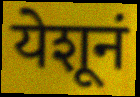
येशूनं